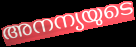
അനന്യയുടെ